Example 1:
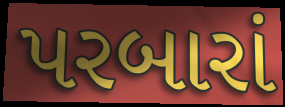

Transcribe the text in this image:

પરબારાં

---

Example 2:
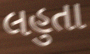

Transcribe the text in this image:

લહુતા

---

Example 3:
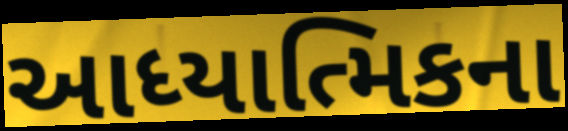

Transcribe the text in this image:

આધ્યાત્મિકના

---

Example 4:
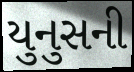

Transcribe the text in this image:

યુનુસની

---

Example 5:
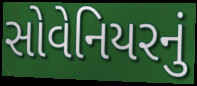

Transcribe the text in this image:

સોવેનિયરનું